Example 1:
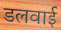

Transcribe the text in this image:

डलवाई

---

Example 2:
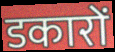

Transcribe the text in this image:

डकारों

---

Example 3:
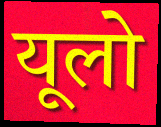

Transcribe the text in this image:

यूलो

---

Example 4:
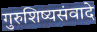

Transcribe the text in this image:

गुरुशिष्यसंवादे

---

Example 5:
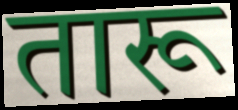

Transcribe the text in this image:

तारू